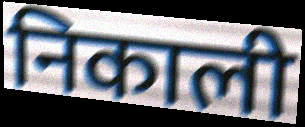
निकाली